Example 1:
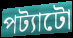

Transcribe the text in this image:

পট্যাটো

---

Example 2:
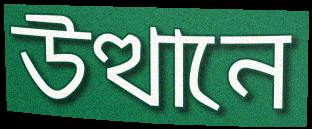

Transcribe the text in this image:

উত্থানে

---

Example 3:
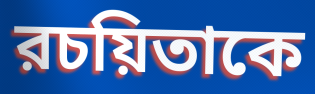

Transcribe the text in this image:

রচয়িতাকে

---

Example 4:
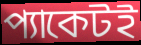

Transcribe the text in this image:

প্যাকেটই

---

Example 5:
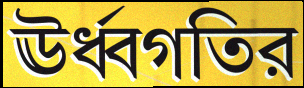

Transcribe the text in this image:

ঊর্ধ্বগতির